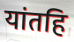
यांतहि